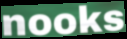
nooks